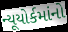
ન્યૂયોર્કમાંનો